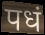
पधं